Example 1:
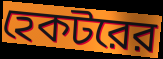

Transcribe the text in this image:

হেকটরের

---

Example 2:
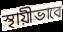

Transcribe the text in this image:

স্থায়ীভাবে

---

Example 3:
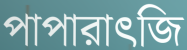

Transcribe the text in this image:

পাপারাৎজি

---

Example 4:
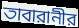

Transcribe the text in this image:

তাবারানীর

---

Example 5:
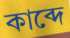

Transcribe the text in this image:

কাব্দে